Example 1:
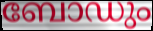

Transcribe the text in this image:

ബോഡും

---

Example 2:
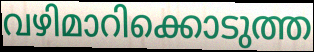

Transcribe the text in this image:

വഴിമാറിക്കൊടുത്ത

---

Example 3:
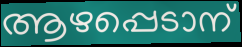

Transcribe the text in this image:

ആഴപ്പെടാന്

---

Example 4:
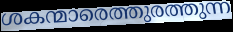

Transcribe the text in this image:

ശകന്മാരെത്തുരത്തുന്ന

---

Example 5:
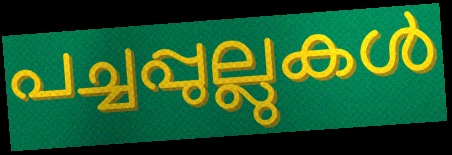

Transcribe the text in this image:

പച്ചപ്പുല്ലുകൾ